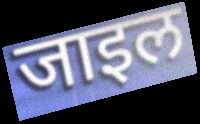
जाइल